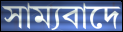
সাম্যবাদে